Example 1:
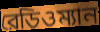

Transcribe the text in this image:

রেডিওম্যান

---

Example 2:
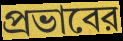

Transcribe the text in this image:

প্রভাবের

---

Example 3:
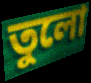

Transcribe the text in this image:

তুলো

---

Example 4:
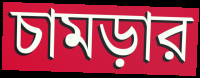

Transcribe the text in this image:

চামড়ার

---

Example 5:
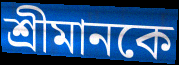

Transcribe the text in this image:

শ্রীমানকে